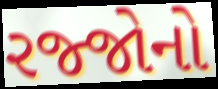
રજ્જોનો